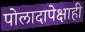
पोलादापेक्षाही